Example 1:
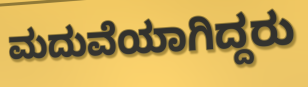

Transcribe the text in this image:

ಮದುವೆಯಾಗಿದ್ದರು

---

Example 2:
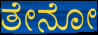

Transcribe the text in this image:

ತೇನೋ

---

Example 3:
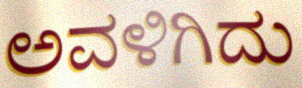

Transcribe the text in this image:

ಅವಳಿಗಿದು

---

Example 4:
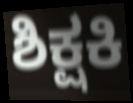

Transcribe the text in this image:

ಶಿಕ್ಷಕಿ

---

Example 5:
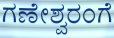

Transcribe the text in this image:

ಗಣೇಶ್ವರಂಗೆ